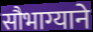
सौभाग्याने